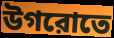
উগরোতে